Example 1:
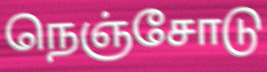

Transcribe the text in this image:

நெஞ்சோடு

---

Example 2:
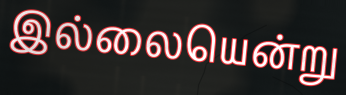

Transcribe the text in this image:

இல்லையென்று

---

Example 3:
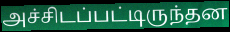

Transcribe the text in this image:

அச்சிடப்பட்டிருந்தன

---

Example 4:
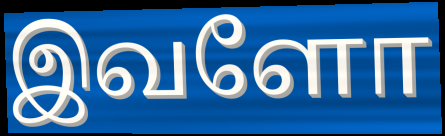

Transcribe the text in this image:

இவளோ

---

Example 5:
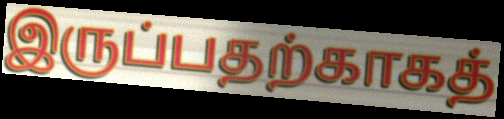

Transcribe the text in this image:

இருப்பதற்காகத்